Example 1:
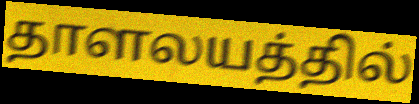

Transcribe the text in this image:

தாளலயத்தில்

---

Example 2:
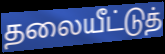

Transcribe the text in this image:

தலையீட்டுத்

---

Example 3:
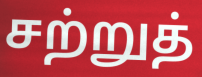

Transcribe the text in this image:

சற்றுத்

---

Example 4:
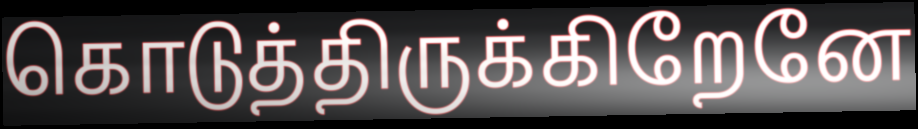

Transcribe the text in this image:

கொடுத்திருக்கிறேனே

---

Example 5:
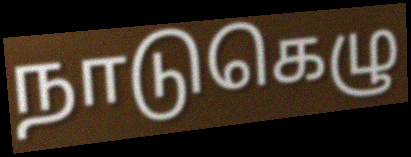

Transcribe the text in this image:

நாடுகெழு